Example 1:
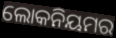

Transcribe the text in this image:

ଲୋକନିୟମର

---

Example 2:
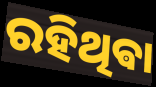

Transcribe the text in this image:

ରହିଥିଵା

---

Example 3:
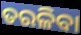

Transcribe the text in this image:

ତରଳିବା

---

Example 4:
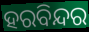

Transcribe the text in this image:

ହରବିନ୍ଦର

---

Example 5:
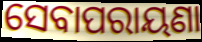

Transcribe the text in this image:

ସେବାପରାୟଣା